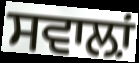
ਸਵਾਲ਼ਾਂ